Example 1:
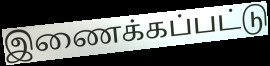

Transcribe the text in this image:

இணைக்கப்பட்டு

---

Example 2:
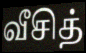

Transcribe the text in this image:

வீசித்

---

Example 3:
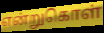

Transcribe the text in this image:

என்றுகொள்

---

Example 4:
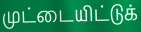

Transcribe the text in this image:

முட்டையிட்டுக்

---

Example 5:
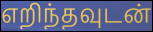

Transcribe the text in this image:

எறிந்தவுடன்